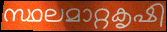
സ്ഥലമാറ്റകൃഷി